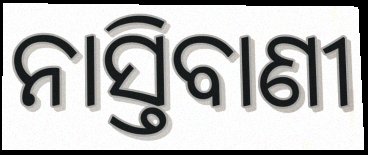
ନାସ୍ତିବାଣୀ